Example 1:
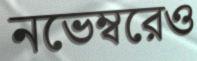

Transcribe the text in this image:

নভেম্বরেও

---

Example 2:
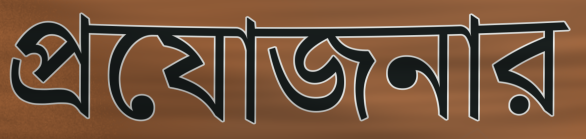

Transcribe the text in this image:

প্রযোজনার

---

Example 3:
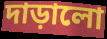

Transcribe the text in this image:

দাড়ালো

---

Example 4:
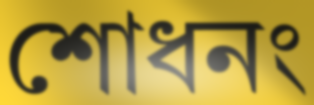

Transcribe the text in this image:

শোধনং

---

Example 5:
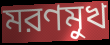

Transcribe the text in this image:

মরণমুখ